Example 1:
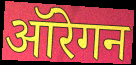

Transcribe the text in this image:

ऑरेगन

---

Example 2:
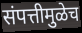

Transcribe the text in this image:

संपत्तीमुळेच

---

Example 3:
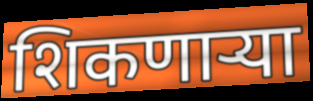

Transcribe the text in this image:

शिकणाऱ्या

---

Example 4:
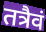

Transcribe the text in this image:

तत्रैवं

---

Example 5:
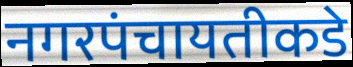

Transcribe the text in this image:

नगरपंचायतीकडे